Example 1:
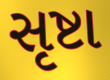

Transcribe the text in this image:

સૃષ્ટા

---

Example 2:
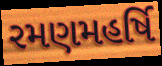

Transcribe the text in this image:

રમણમહર્ષિ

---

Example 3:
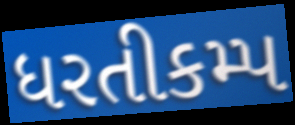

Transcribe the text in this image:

ધરતીકમ્પ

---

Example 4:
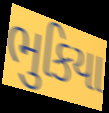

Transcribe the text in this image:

ભુકિયા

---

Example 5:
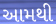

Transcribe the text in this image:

આમથી